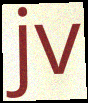
jv